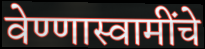
वेण्णास्वामींचे